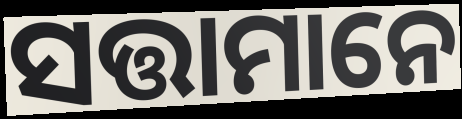
ସତ୍ତାମାନେ